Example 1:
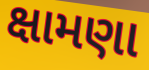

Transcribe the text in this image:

ક્ષામણા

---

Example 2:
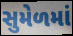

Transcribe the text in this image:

સુમેળમાં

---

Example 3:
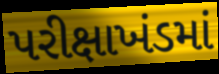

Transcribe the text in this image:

પરીક્ષાખંડમાં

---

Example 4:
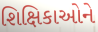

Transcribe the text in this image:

શિક્ષિકાઓને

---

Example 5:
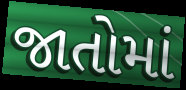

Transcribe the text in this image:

જાતોમાં